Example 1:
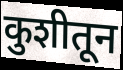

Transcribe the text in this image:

कुशीतून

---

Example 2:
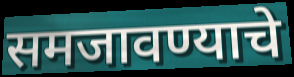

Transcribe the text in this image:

समजावण्याचे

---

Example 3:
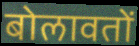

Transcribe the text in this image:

बोलावतों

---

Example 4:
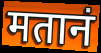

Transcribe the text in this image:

मतानं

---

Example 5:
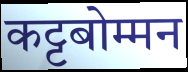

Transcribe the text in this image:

कट्टबोम्मन